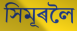
সিমূৰলৈ